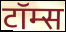
टॉम्स